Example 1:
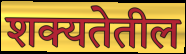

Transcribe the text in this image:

शक्यतेतील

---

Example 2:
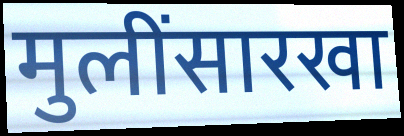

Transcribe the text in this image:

मुलींसारखा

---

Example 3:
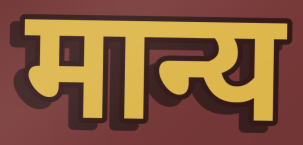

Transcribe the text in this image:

मान्य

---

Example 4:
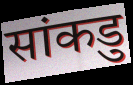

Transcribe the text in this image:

सांकडु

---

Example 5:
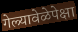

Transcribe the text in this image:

गेल्यावेळेपेक्षा